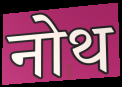
नोथ